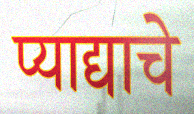
प्याद्याचे